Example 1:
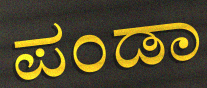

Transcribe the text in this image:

ಪಂಡಾ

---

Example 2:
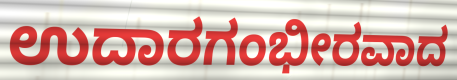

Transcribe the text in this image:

ಉದಾರಗಂಭೀರವಾದ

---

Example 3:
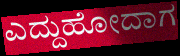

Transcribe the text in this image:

ಎದ್ದುಹೋದಾಗ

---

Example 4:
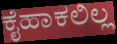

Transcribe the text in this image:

ಕೈಹಾಕಲಿಲ್ಲ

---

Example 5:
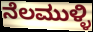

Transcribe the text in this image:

ನೆಲಮುಳ್ಳಿ